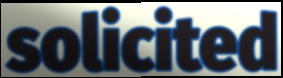
solicited